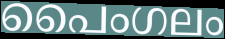
പൈംഗലം